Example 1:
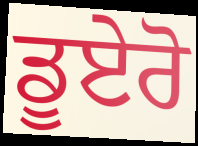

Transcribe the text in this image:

ਡੂਏਰੋ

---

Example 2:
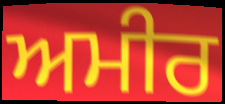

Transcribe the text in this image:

ਅਮੀਰ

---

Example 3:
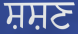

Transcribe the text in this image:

ਸ਼ਸ਼ਣ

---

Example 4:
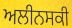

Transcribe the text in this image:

ਅਲੀਨਸਕੀ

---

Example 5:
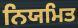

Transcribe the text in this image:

ਨਿਯਮਿਤ